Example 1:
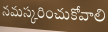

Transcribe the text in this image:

నమస్కరించుకోవాలి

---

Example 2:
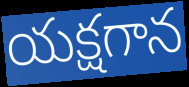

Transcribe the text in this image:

యక్షగాన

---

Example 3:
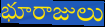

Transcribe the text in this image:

భూరాజులు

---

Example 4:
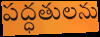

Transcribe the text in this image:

పద్ధతులను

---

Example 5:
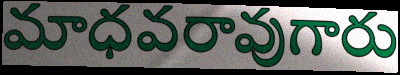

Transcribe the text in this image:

మాధవరావుగారు